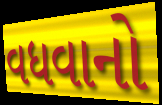
વધવાનો